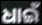
ଧାଇଁ